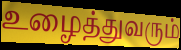
உழைத்துவரும்